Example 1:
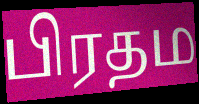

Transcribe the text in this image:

பிரதம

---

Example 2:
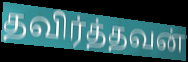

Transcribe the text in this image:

தவிர்த்தவன்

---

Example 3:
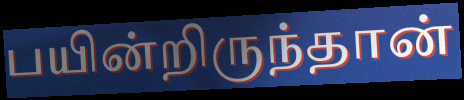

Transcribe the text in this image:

பயின்றிருந்தான்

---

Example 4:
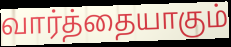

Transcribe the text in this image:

வார்த்தையாகும்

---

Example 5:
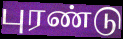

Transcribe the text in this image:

புரண்டு